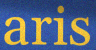
aris